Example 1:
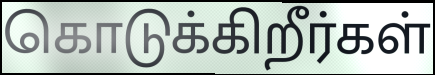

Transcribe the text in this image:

கொடுக்கிறீர்கள்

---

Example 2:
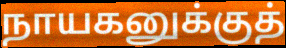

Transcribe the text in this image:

நாயகனுக்குத்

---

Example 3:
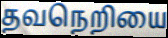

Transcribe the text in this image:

தவநெறியை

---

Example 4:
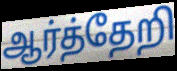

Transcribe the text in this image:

ஆர்த்தேறி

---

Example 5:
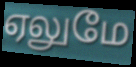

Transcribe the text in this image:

ஏலுமே